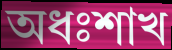
অধঃশাখ